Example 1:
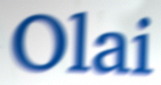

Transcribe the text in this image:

Olai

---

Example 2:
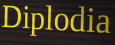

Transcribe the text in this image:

Diplodia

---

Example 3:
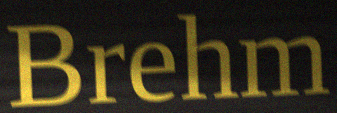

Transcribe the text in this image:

Brehm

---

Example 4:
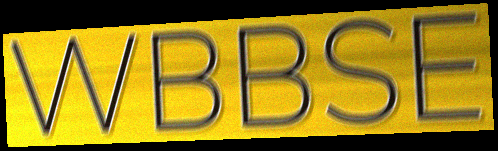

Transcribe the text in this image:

WBBSE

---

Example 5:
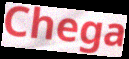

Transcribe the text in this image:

Chega